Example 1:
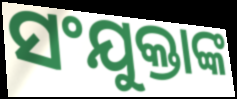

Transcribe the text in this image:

ସଂଯୁକ୍ତାଙ୍କ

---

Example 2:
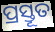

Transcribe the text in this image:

ପ୍ରସ୍ତୂତ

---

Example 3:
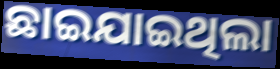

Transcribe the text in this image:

ଛାଇଯାଇଥିଲା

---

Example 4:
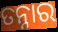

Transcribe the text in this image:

ତନ୍ନାର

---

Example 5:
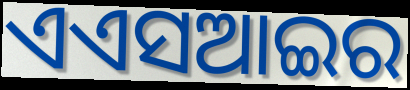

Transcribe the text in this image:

ଏଏସଆଇର